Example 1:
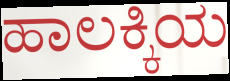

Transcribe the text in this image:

ಹಾಲಕ್ಕಿಯ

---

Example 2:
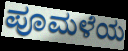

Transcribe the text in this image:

ಪೂಮಳೆಯ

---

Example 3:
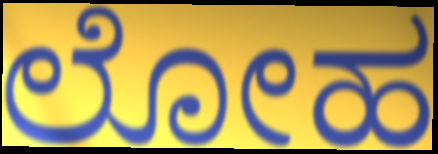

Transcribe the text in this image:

ಲೋಹ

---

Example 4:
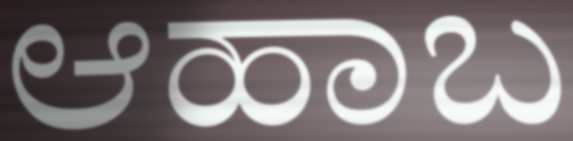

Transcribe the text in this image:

ಆಹಾಬ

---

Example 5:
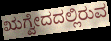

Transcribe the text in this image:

ಋಗ್ವೇದದಲ್ಲಿರುವ